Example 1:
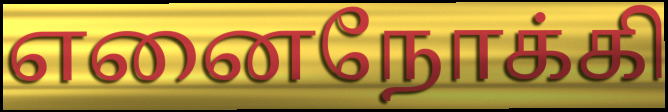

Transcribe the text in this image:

எனைநோக்கி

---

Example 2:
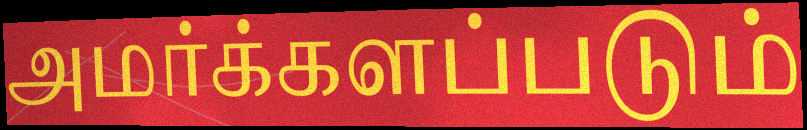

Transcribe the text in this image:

அமர்க்களப்படும்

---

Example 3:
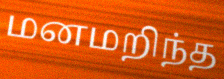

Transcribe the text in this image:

மனமறிந்த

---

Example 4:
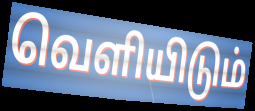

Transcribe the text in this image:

வெளியிடும்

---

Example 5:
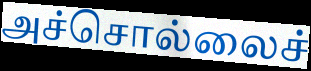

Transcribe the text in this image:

அச்சொல்லைச்